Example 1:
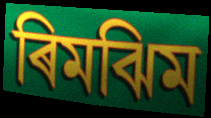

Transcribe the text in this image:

ৰিমঝিম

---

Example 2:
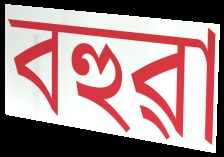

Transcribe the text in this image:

বহুৱা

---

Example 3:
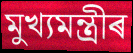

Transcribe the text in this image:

মুখ্যমন্ত্ৰীৰ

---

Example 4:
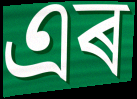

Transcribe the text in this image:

এৰ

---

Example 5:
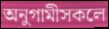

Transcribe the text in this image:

অনুগামীসকলে